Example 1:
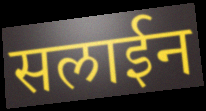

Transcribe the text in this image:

सलाईन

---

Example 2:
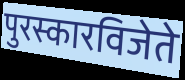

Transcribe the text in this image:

पुरस्कारविजेते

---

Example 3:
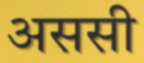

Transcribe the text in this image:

अससी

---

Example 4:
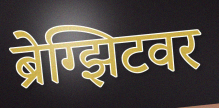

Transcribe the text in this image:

ब्रेग्झिटवर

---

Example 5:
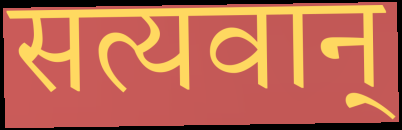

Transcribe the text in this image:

सत्यवान्